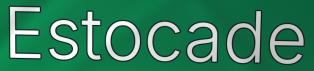
Estocade